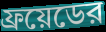
ফ্রয়েডের